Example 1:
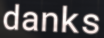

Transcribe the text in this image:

danks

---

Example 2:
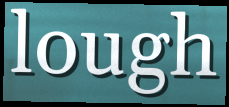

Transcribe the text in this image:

lough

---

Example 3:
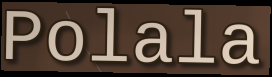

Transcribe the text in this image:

Polala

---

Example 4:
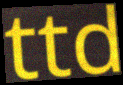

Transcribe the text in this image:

ttd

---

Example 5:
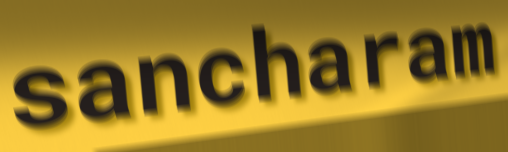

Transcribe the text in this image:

sancharam